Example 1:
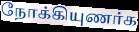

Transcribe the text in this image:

நோக்கியுணர்க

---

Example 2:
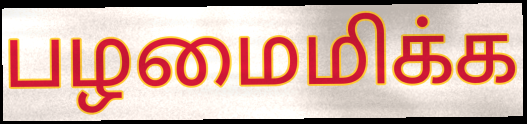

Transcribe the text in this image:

பழமைமிக்க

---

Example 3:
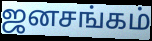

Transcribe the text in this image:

ஜனசங்கம்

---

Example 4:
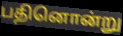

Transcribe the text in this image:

பதினொன்று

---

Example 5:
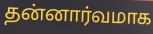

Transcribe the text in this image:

தன்னார்வமாக